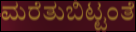
ಮರೆತುಬಿಟ್ಟಂತೆ